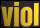
viol